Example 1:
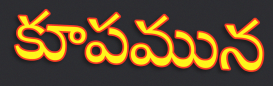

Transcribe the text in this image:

కూపమున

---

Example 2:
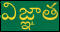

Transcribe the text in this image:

విజ్ఞాత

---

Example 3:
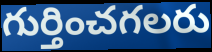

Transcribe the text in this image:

గుర్తించగలరు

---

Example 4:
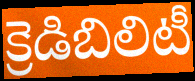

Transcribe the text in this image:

క్రెడిబిలిటీ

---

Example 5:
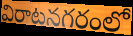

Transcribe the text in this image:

విరాటనగరంలో